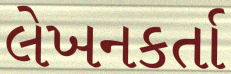
લેખનકર્તા